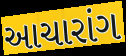
આચારાંગ